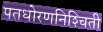
पतधोरणनिश्चिती